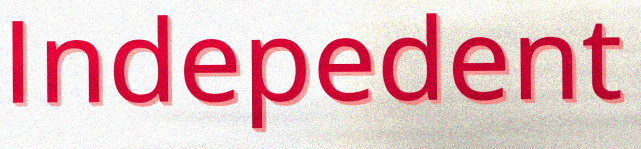
Indepedent